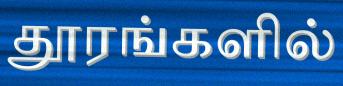
தூரங்களில்